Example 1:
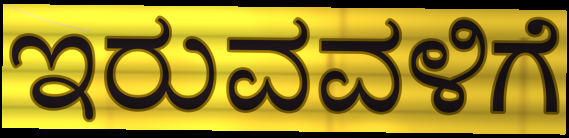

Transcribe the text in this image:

ಇರುವವಳಿಗೆ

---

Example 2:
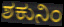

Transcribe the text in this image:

ಶಕುನಿಂ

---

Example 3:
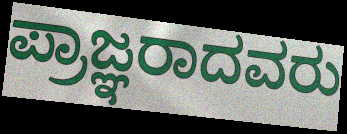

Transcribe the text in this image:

ಪ್ರಾಜ್ಞರಾದವರು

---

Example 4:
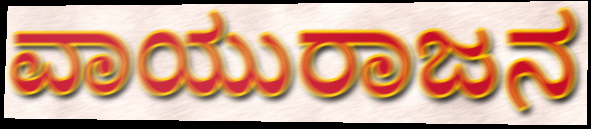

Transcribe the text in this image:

ವಾಯುರಾಜನ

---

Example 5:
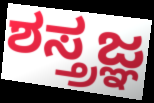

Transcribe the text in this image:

ಶಸ್ತ್ರಜ್ಞ